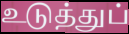
உடுத்துப்